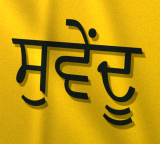
ਸੁਵੇਂਦੂ